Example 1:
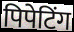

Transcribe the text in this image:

पिपेटिंग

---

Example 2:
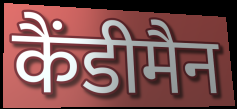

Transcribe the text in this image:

कैंडीमैन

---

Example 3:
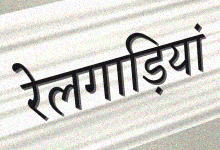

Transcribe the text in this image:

रेलगाड़ियां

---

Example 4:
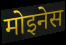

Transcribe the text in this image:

मोइनेस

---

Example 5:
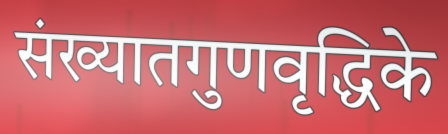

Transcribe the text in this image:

संख्यातगुणवृद्धिके